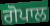
ਗੋਪਾਲ